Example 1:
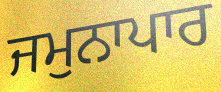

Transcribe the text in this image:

ਜਮੁਨਾਪਾਰ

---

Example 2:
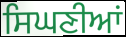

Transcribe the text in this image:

ਸਿਘਣੀਆਂ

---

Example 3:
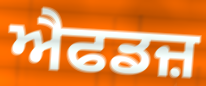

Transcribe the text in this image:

ਐਫਡਜ਼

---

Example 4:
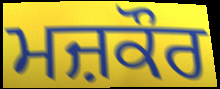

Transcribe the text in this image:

ਮਜ਼ਕੌਰ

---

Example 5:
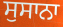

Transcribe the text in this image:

ਸੁਸਾਨਾ